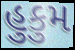
હુકુમ